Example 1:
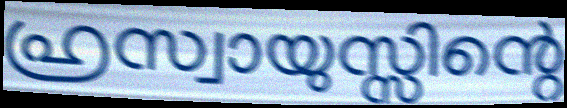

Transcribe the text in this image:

ഹ്രസ്വായുസ്സിന്റെ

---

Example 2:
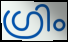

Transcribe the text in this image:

ഗ്രിം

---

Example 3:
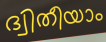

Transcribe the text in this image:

ദ്വിതീയാം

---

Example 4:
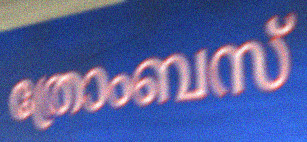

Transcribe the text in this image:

ത്രോംബസ്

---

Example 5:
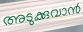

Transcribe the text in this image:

അടുക്കുവാൻ